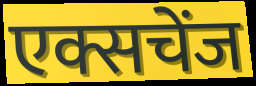
एक्सचेंज